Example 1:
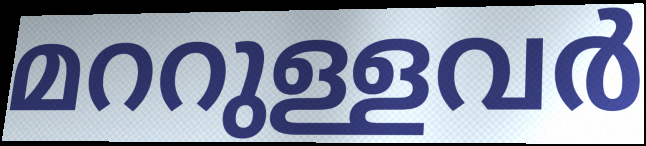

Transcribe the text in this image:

മററുള്ളവർ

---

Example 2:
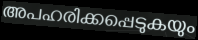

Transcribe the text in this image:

അപഹരിക്കപ്പെടുകയും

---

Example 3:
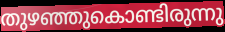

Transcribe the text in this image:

തുഴഞ്ഞുകൊണ്ടിരുന്നു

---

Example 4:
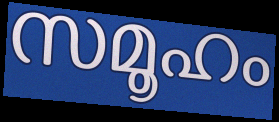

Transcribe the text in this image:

സമൂഹം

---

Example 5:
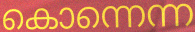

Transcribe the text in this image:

കൊന്നെന്ന